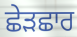
ਛੇੜਛਾਰ